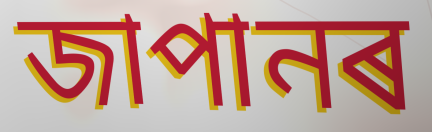
জাপানৰ